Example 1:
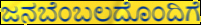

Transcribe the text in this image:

ಜನಬೆಂಬಲದೊಂದಿಗೆ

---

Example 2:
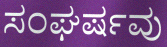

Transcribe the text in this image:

ಸಂಘರ್ಷವು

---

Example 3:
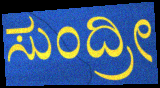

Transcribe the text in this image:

ಸುಂದ್ರೀ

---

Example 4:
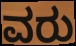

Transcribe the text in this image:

ವರು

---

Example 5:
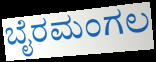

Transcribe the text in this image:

ಬೈರಮಂಗಲ